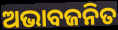
ଅଭାବଜନିତ